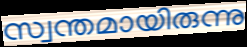
സ്വന്തമായിരുന്നു